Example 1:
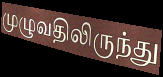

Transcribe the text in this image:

முழுவதிலிருந்து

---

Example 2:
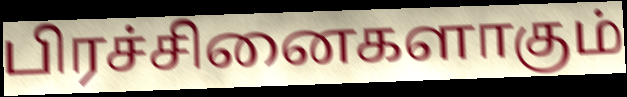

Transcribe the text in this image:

பிரச்சினைகளாகும்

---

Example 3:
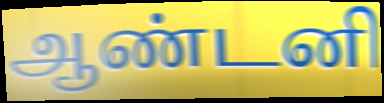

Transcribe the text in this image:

ஆண்டனி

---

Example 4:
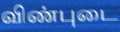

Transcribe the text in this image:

விண்புடை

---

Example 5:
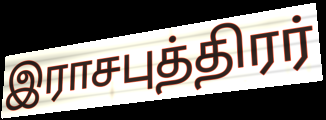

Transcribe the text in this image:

இராசபுத்திரர்